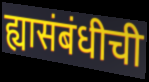
ह्यासंबंधीची